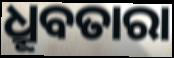
ଧ୍ରୂବତାରା